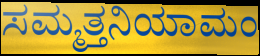
ಸಮ್ಮತ್ತನಿಯಾಮಂ